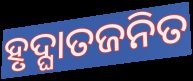
ହୃଦ୍ଘାତଜନିତ